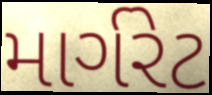
માર્ગરેટ